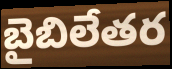
బైబిలేతర